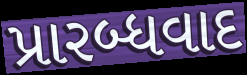
પ્રારબ્ધવાદ